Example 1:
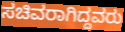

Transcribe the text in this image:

ಸಚಿವರಾಗಿದ್ದವರು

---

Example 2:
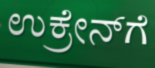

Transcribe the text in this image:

ಉಕ್ರೇನ್‌ಗೆ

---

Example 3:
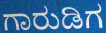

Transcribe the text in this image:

ಗಾರುಡಿಗ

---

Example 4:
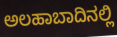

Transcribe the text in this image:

ಅಲಹಾಬಾದಿನಲ್ಲಿ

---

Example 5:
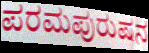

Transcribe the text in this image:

ಪರಮಪುರುಷನ